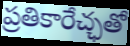
ప్రతికారేచ్ఛతో